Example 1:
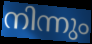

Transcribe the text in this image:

നിന്നും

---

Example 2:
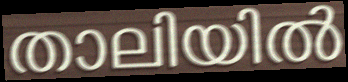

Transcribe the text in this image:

താലിയിൽ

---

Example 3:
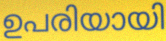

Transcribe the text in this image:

ഉപരിയായി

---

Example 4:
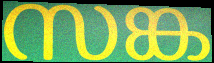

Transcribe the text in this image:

സങ്ക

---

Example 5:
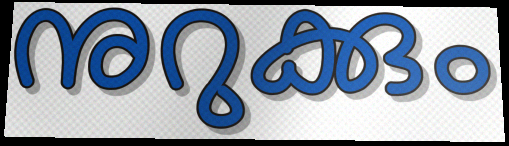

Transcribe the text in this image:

നുറുക്കും